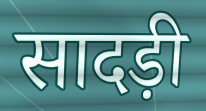
सादड़ी